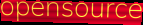
opensource